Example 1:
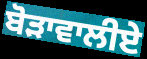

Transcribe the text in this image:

ਬੋੜਾਵਾਲੀਏ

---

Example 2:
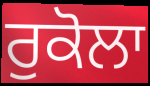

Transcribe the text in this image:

ਰੁਕੋਲਾ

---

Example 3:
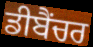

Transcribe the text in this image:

ਡੀਬੈਂਚਰ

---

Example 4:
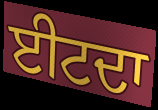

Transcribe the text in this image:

ਈਟਦਾ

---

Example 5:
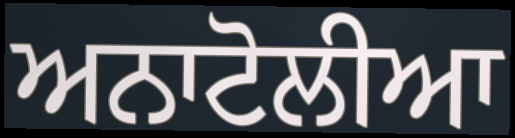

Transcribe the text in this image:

ਅਨਾਟੋਲੀਆ